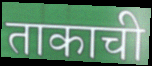
ताकाची